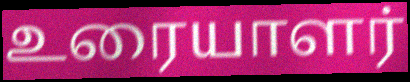
உரையாளர்